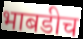
भाबडीच